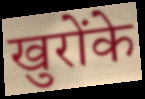
खुरोंके